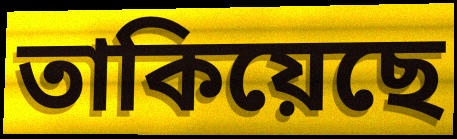
তাকিয়েছে